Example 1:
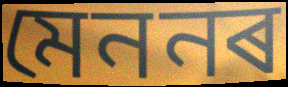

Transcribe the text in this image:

মেননৰ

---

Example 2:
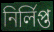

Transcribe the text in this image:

নিৰ্লিপ্ত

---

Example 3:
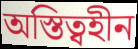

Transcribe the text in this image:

অস্তিত্বহীন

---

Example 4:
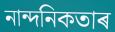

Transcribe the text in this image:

নান্দনিকতাৰ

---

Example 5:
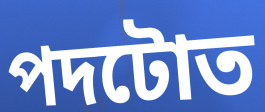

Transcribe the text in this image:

পদটোত